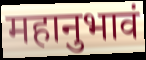
महानुभावं